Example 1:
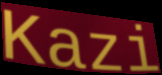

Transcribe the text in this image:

Kazi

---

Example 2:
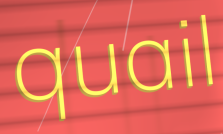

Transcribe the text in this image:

quail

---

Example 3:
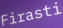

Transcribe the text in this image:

Firasti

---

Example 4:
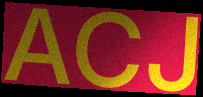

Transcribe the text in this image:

ACJ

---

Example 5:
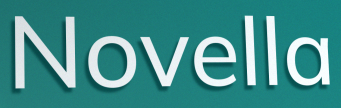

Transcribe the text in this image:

Novella